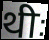
थीः